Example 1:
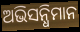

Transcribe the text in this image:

ଅଭିସନ୍ଧିମାନ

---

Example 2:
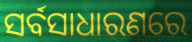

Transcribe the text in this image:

ସର୍ବସାଧାରଣରେ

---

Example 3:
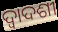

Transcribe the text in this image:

ଦ୍ବାଦଶୀ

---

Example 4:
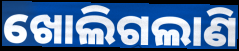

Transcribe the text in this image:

ଖୋଲିଗଲାଣି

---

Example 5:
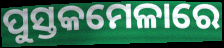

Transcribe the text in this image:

ପୁସ୍ତକମେଳାରେ